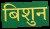
बिशुन